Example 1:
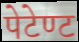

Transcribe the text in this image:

पेटेण्ट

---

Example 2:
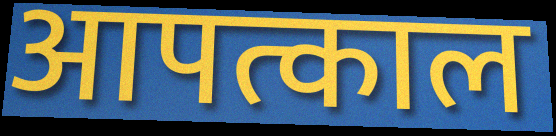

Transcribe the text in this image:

आपत्काल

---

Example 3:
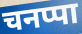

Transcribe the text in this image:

चनप्पा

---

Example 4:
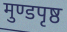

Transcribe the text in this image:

मुण्डपृष्ठ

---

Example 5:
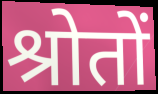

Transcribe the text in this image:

श्रोतों